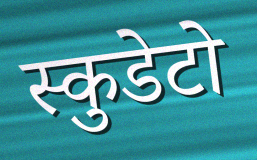
स्कुडेटो